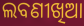
ଲବଣୀଖିଆ